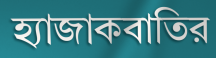
হ্যাজাকবাতির